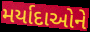
મર્યાદાઓને